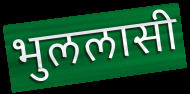
भुललासी